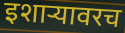
इशाऱ्यावरच